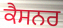
ਕੈਸਨਰ